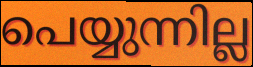
പെയ്യുന്നില്ല